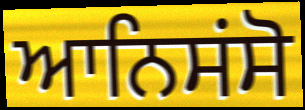
ਆਨਿਸਂਸੋ